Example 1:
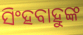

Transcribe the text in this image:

ସିଂହବାହୁଙ୍କ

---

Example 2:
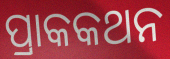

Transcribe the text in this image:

ପ୍ରାକକଥନ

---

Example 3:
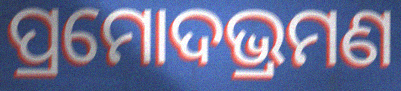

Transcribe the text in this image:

ପ୍ରମୋଦଭ୍ରମଣ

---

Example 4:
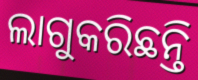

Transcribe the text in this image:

ଲାଗୁକରିଛନ୍ତି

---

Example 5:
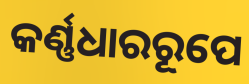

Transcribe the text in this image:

କର୍ଣ୍ଣଧାରରୂପେ